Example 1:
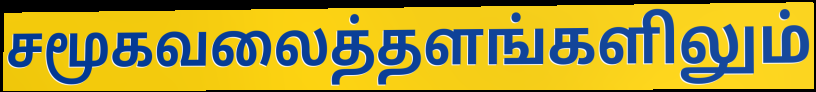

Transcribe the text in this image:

சமூகவலைத்தளங்களிலும்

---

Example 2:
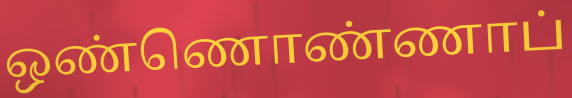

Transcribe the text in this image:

ஒண்ணொண்ணாப்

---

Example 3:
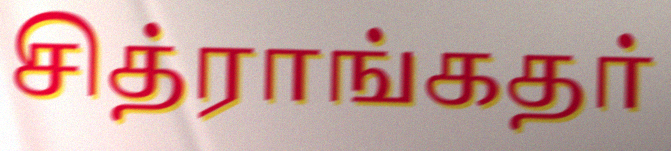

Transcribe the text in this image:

சித்ராங்கதர்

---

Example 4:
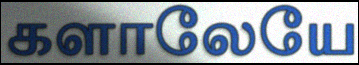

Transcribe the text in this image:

களாலேயே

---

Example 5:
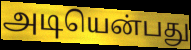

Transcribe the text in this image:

அடியென்பது